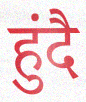
हुंदै